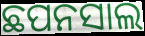
ଛପନସାଲ